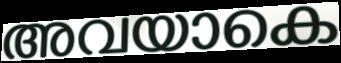
അവയാകെ